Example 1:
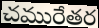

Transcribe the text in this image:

చమురేతర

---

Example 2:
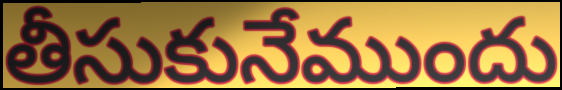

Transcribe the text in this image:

తీసుకునేముందు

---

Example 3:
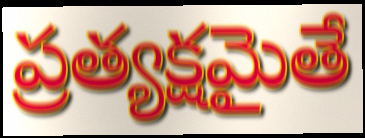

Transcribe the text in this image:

ప్రత్యక్షమైతే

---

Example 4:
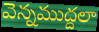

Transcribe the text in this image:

వెన్నముద్దలా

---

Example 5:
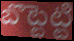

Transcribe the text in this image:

బొట్టెట్టి